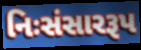
નિઃસંસારરૂપ